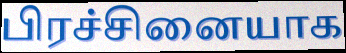
பிரச்சினையாக